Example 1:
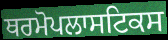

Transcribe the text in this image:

ਥਰਮੋਪਲਾਸਟਿਕਸ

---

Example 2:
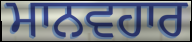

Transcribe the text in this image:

ਮਾਨਵਹਾਰ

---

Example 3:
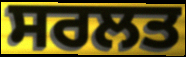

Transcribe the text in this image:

ਸਰਲਤ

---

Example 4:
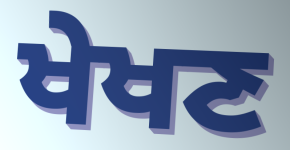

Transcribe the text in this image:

ਖੇਖਣ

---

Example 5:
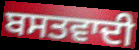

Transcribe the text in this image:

ਬਸਤਵਾਦੀ